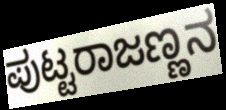
ಪುಟ್ಟರಾಜಣ್ಣನ